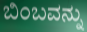
ಬಿಂಬವನ್ನು